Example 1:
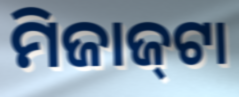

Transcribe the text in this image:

ମିଜାଜ୍‌ଟା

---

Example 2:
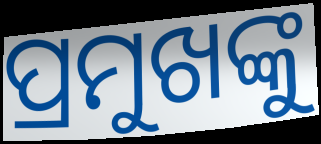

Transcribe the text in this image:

ପ୍ରମୁଖଙ୍କୁ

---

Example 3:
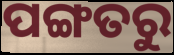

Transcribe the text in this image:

ପଙ୍ଗତରୁ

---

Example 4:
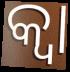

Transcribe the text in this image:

କ୍ଵା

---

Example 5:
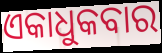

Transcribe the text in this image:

ଏକାଧୁକବାର